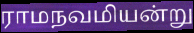
ராமநவமியன்று